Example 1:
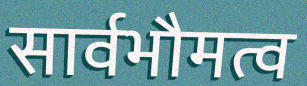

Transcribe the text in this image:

सार्वभौमत्व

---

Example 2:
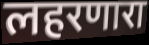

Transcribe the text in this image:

लहरणारा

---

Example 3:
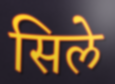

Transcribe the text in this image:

सिले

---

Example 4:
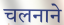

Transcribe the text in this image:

चलनाने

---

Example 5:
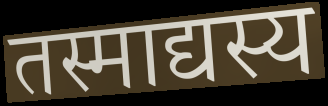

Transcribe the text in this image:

तस्माद्यस्य